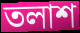
তলাশ